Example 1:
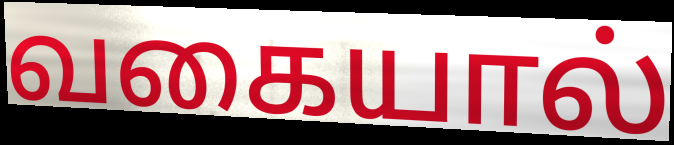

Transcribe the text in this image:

வகையால்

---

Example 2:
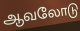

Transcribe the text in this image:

ஆவலோடு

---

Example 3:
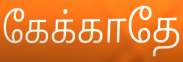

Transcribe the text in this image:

கேக்காதே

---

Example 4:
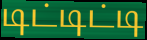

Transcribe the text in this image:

டிட்டிட்டி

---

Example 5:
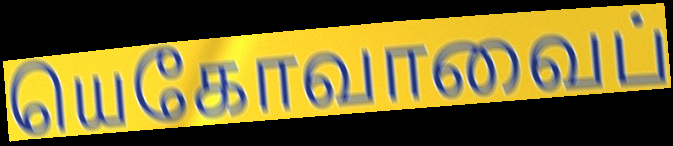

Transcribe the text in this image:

யெகோவாவைப்